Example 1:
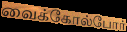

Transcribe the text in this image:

வைக்கோல்போர்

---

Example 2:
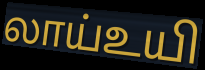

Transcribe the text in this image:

லாய்உயி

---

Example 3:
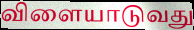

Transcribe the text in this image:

விளையாடுவது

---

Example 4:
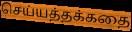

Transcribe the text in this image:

செய்யத்தக்கதை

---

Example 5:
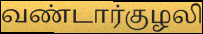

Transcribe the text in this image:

வண்டார்குழலி